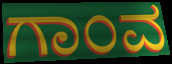
ಗಾಂವ